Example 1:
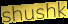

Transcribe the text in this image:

shushk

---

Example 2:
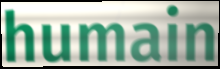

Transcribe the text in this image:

humain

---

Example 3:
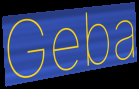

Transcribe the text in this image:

Geba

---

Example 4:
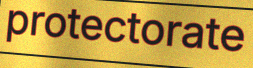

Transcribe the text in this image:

protectorate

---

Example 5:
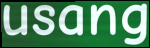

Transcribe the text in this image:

usang